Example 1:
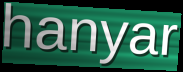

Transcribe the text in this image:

hanyar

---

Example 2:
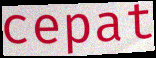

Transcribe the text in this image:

cepat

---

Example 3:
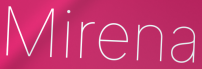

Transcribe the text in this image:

Mirena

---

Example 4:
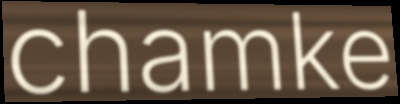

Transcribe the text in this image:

chamke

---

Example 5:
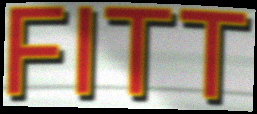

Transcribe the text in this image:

FITT